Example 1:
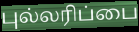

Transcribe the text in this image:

புல்லரிப்பை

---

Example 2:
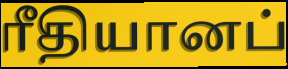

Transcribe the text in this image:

ரீதியானப்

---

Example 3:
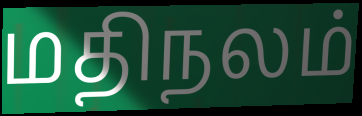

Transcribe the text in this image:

மதிநலம்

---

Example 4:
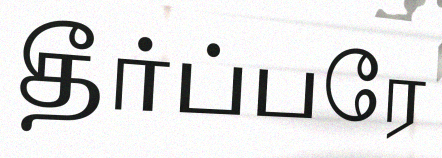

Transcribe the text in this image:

தீர்ப்பரே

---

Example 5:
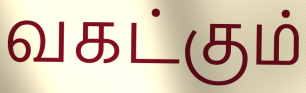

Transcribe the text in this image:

வகட்கும்